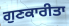
ਗੁਣਕਾਰੀਤਾ